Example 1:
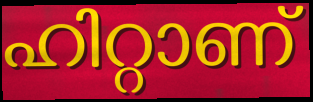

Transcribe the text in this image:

ഹിറ്റാണ്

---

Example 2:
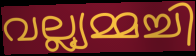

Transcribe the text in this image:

വല്ല്യമ്മച്ചി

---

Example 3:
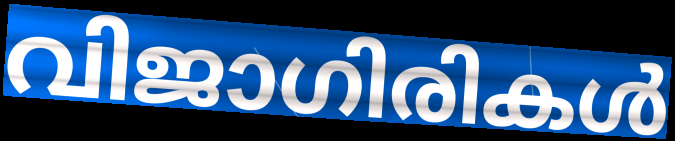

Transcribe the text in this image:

വിജാഗിരികൾ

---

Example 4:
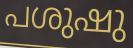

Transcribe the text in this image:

പശുഷു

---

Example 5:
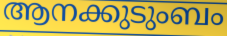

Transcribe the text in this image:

ആനക്കുടുംബം